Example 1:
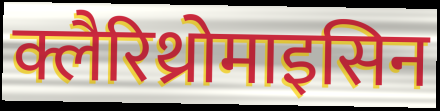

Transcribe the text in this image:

क्लैरिथ्रोमाइसिन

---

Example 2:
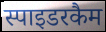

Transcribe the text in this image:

स्पाइडरकैम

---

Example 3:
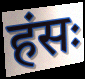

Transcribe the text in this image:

हंसः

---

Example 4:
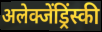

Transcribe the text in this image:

अलेक्जेंड्रिंस्की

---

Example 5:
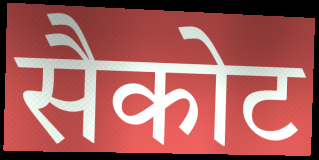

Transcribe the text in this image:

सैकोट